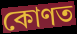
কোণত